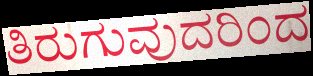
ತಿರುಗುವುದರಿಂದ